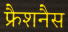
फ्रैशनैस